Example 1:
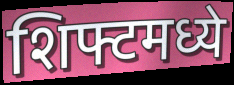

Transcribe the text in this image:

शिफ्टमध्ये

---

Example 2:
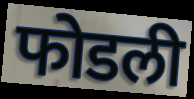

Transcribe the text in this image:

फोडली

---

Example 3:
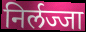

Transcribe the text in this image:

निर्लज्जा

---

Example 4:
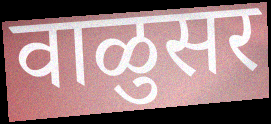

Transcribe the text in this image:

वाळुसर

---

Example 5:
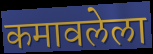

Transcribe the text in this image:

कमावलेला